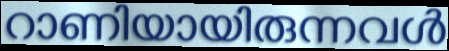
റാണിയായിരുന്നവൾ